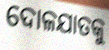
ଦୋଳଯାତକୁ